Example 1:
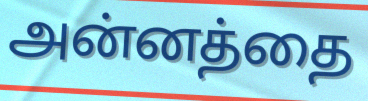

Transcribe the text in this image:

அன்னத்தை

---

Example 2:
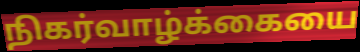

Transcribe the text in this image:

நிகர்வாழ்க்கையை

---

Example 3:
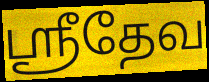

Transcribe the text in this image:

ஸ்ரீதேவ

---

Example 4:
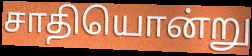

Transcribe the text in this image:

சாதியொன்று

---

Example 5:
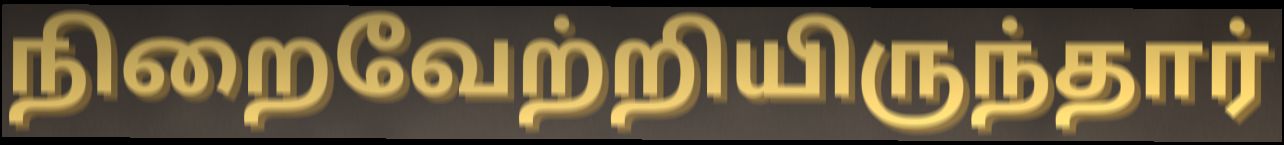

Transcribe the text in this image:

நிறைவேற்றியிருந்தார்